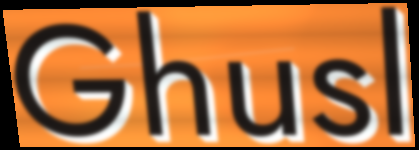
Ghusl